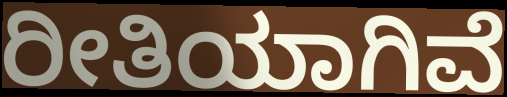
ರೀತಿಯಾಗಿವೆ